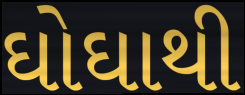
ઘોઘાથી